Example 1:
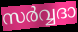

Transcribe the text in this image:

സർവ്വദാ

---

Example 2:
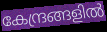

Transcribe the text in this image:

കേന്ദ്രങ്ങളിൽ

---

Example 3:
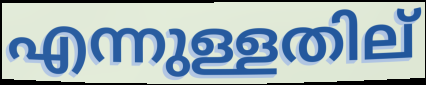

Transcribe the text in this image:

എന്നുള്ളതില്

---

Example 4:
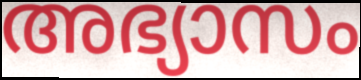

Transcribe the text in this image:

അഭ്യാസം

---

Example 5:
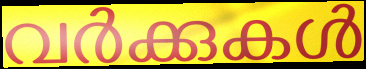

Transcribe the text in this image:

വർക്കുകൾ